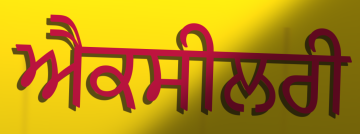
ਐਕਸੀਲਰੀ